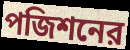
পজিশনের